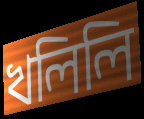
খলিলি